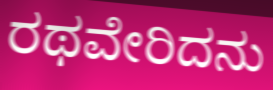
ರಥವೇರಿದನು